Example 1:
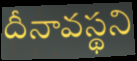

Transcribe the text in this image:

దీనావస్థని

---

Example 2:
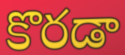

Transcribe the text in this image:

కొరడా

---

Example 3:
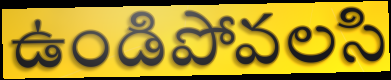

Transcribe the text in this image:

ఉండిపోవలసి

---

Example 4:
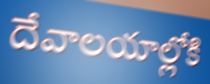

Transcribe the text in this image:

దేవాలయాల్లోకి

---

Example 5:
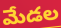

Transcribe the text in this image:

మేడల